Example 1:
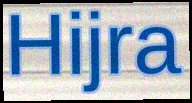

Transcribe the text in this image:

Hijra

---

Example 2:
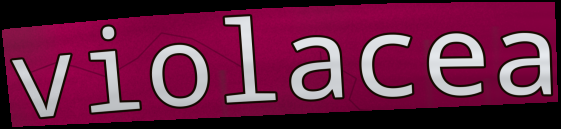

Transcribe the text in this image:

violacea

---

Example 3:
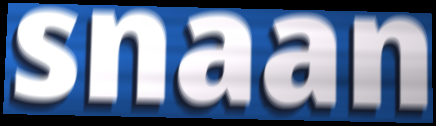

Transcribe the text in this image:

snaan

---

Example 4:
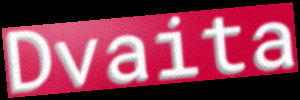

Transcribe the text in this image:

Dvaita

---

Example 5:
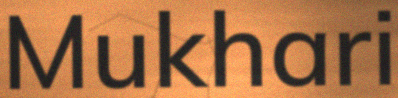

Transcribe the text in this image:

Mukhari